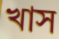
খাস